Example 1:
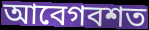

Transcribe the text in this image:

আবেগবশত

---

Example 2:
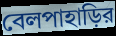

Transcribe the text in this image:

বেলপাহাড়ির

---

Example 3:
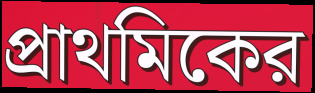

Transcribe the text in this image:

প্রাথমিকের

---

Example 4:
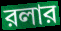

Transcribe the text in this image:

রলার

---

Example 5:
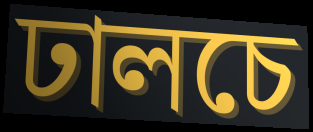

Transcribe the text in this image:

ঢালচে